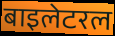
बाइलेटरल